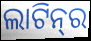
ଲାଟିନ୍‌ର